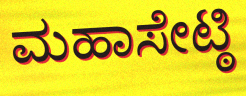
ಮಹಾಸೇಟ್ಠಿ